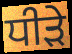
ਧੀੜੇ